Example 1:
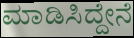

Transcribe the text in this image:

ಮಾಡಿಸಿದ್ದೇನೆ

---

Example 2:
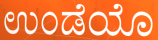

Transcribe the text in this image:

ಉಂಡೆಯೊ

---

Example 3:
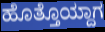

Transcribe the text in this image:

ಹೊತ್ತೊಯ್ದಾಗ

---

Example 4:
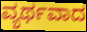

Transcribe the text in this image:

ವ್ಯರ್ಥವಾದ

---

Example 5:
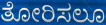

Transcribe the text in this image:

ತೋರಿಸಲೂ